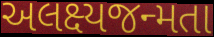
અલક્ષ્યજન્મતા